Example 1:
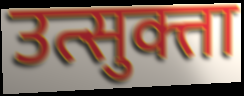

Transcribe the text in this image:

उत्सुक्ता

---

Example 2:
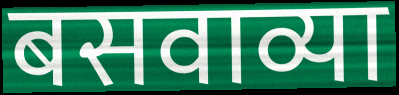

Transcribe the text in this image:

बसवाव्या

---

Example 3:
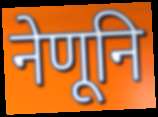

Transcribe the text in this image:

नेणूनि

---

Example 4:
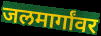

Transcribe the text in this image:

जलमार्गांवर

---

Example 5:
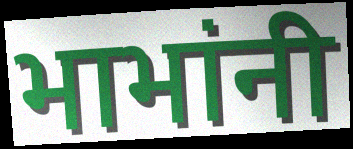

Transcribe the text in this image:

भाभांनी